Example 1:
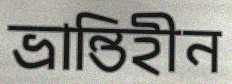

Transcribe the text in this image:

ভ্রান্তিহীন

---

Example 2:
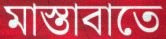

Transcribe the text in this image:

মাস্তাবাতে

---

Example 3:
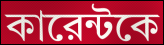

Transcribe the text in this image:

কারেন্টকে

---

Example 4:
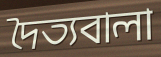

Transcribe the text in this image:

দৈত্যবালা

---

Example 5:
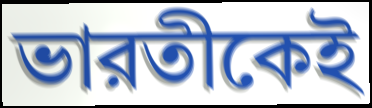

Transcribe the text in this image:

ভারতীকেই